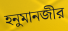
হনুমানজীর